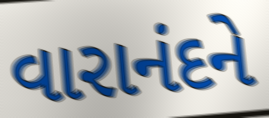
વારાનંદને